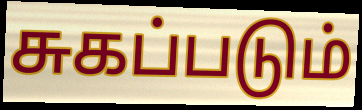
சுகப்படும்